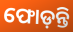
ଫୋଡ଼ନ୍ତି